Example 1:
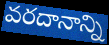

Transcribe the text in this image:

వరదానాన్ని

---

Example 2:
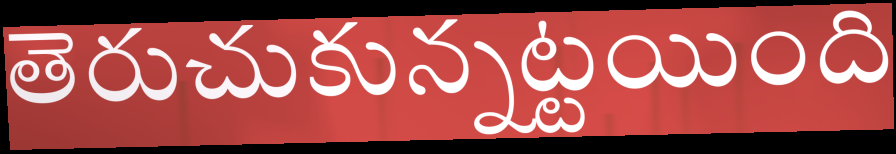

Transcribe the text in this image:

తెరుచుకున్నట్టయింది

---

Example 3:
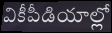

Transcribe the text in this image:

వికీపీడియాల్లో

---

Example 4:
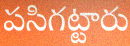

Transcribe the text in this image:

పసిగట్టారు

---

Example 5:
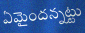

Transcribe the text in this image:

ఏమైందన్నట్టు